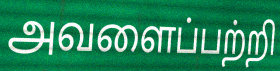
அவளைப்பற்றி